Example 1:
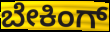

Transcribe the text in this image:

ಬೇಕಿಂಗ್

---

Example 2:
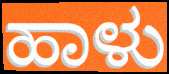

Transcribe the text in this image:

ಹಾಳು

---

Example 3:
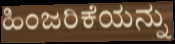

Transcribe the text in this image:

ಹಿಂಜರಿಕೆಯನ್ನು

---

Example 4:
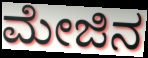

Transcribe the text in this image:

ಮೇಜಿನ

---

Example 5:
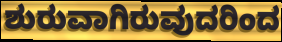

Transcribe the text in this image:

ಶುರುವಾಗಿರುವುದರಿಂದ